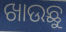
ଖାଉଛୁ